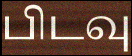
பிடவு